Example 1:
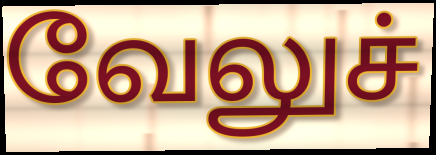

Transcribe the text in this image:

வேலுச்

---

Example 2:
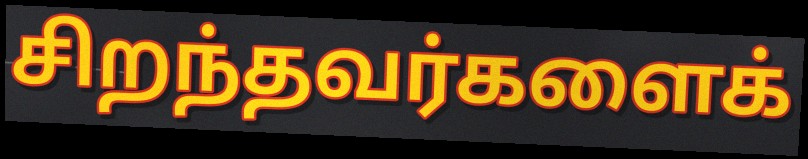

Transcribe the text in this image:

சிறந்தவர்களைக்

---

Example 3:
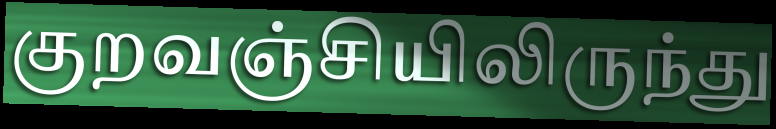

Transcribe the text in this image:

குறவஞ்சியிலிருந்து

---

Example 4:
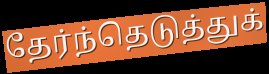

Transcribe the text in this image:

தேர்ந்தெடுத்துக்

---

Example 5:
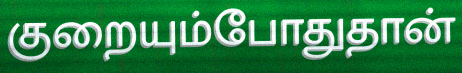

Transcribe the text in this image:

குறையும்போதுதான்